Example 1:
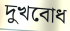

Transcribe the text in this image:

দুখবোধ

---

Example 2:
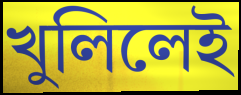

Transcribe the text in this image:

খুলিলেই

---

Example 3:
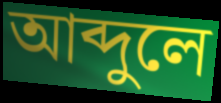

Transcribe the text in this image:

আব্দুলে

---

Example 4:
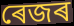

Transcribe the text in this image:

ৰেজৰ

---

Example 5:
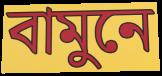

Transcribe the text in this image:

বামুনে